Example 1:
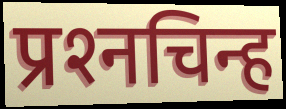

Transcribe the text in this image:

प्रश्नचिन्ह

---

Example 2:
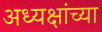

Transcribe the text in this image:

अध्यक्षांच्या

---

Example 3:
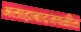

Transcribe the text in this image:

अलाहाबादजवळील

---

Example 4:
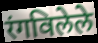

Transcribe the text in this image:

रंगविलेले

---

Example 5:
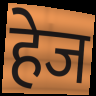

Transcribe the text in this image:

हेज